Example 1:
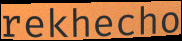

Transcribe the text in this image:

rekhecho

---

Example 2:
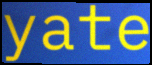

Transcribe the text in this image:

yate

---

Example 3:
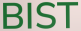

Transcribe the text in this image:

BIST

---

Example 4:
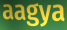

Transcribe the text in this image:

aagya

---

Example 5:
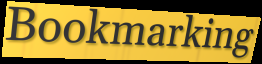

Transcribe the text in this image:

Bookmarking